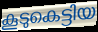
കൂടുകെട്ടിയ